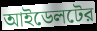
আইডেলটের